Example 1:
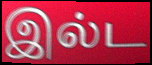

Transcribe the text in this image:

இல்ட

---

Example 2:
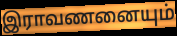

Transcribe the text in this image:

இராவணனையும்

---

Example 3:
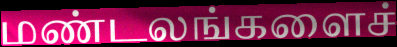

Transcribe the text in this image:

மண்டலங்களைச்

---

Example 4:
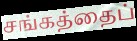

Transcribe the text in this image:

சங்கத்தைப்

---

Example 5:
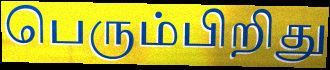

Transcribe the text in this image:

பெரும்பிறிது